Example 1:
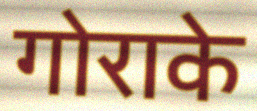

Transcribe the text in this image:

गोराके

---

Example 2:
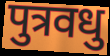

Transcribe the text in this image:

पुत्रवधु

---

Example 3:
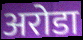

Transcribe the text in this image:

अरोडा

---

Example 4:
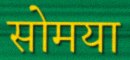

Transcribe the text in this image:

सोमया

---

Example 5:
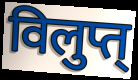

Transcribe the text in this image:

विलुप्त्